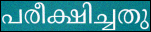
പരീക്ഷിച്ചതു